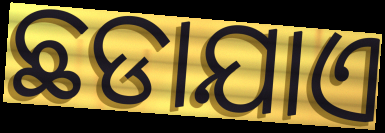
ଛଡାଯାଏ